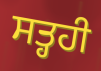
ਸਤ੍ਹਹੀ